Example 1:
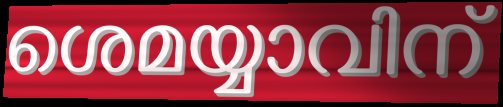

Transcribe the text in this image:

ശെമയ്യാവിന്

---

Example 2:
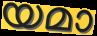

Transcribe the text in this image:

യമാ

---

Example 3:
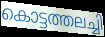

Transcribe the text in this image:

കൊട്ടത്തലച്ചി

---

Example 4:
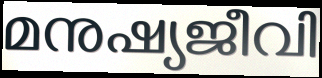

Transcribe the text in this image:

മനുഷ്യജീവി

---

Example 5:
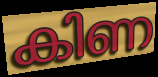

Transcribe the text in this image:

കിണ